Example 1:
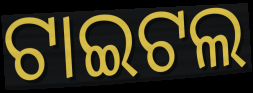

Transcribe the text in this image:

ଟାଇଟଲ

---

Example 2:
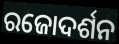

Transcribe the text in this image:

ରଜୋଦର୍ଶନ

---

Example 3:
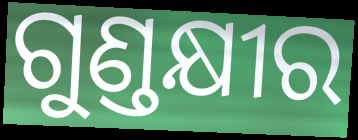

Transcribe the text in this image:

ଗୁଣ୍ଡକ୍ଷୀର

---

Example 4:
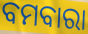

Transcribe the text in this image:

ବମବାରା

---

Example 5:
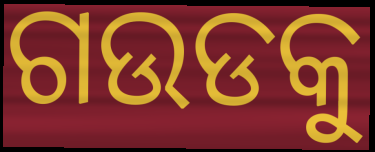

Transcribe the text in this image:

ଗଉଡକୁ